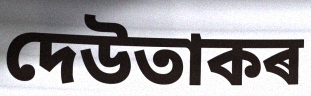
দেউতাকৰ